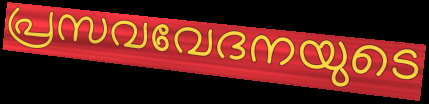
പ്രസവവേദനയുടെ